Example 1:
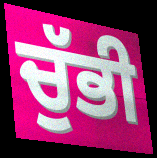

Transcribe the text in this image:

ਚੁੱਭੀ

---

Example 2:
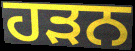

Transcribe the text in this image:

ਹੜਨ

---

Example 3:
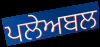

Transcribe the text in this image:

ਪਲੇਅਬਲ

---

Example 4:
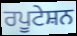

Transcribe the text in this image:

ਰਪੂਟੇਸ਼ਨ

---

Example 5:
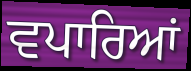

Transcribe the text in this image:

ਵਪਾਰਿਆਂ